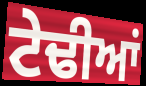
ਟੇਢੀਆਂ